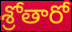
శ్రోతారో